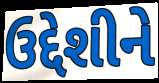
ઉદ્દેશીને